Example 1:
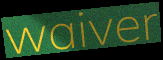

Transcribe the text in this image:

waiver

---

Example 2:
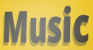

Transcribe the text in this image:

Music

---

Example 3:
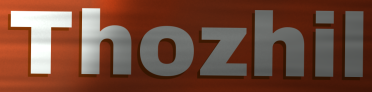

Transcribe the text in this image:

Thozhil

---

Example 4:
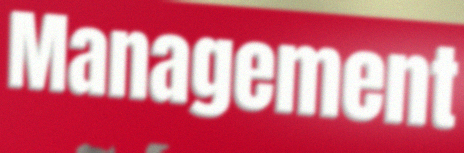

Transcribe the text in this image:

Management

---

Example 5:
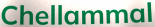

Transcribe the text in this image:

Chellammal